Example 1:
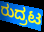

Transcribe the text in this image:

ರುದ್ರಟ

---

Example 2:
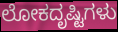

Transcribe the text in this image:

ಲೋಕದೃಷ್ಟಿಗಳು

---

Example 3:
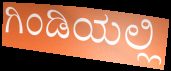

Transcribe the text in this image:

ಗಿಂಡಿಯಲ್ಲಿ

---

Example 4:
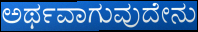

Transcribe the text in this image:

ಅರ್ಥವಾಗುವುದೇನು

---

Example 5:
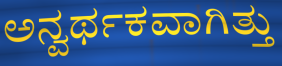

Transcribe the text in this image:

ಅನ್ವರ್ಥಕವಾಗಿತ್ತು